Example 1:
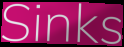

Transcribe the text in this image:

Sinks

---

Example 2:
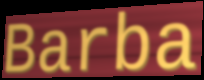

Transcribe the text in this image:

Barba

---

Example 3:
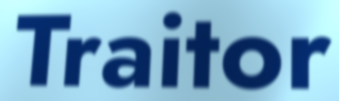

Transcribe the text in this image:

Traitor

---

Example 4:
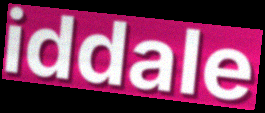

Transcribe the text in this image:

iddale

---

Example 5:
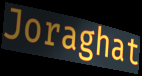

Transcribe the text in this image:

Joraghat